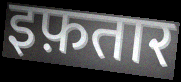
इफ़तार